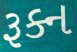
રૂક્ન